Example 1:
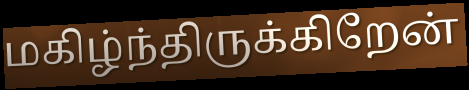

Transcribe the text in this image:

மகிழ்ந்திருக்கிறேன்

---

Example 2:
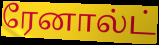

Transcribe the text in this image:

ரேனால்ட்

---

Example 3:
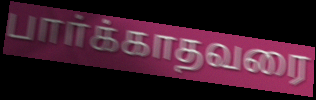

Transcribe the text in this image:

பார்க்காதவரை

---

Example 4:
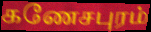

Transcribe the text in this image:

கணேசபுரம்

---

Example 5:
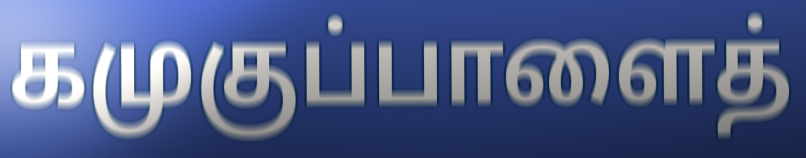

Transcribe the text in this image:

கமுகுப்பாளைத்